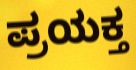
ಪ್ರಯಕ್ತ